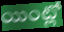
యింట్లో